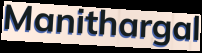
Manithargal